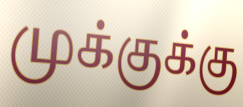
முக்குக்கு